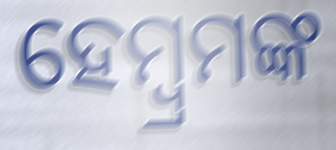
ହେମ୍ବ୍ରମଙ୍କ